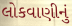
લોકવાણીનું